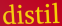
distil